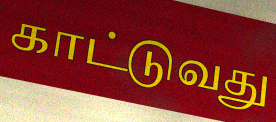
காட்டுவது